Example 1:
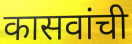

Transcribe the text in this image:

कासवांची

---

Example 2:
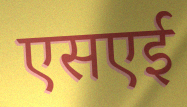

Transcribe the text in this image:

एसएई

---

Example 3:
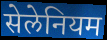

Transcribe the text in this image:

सेलेनियम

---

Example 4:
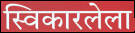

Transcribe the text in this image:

स्विकारलेला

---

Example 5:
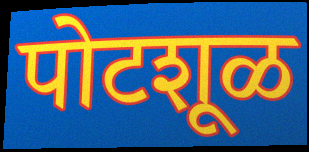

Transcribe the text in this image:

पोटशूळ